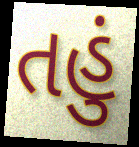
તહું